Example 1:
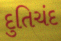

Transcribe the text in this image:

દુતિચંદ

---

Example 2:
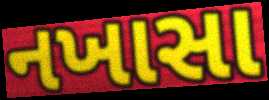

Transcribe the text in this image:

નખાસા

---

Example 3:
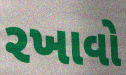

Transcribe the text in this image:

રખાવો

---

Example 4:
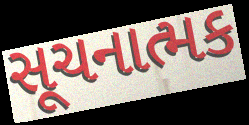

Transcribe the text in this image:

સૂચનાત્મક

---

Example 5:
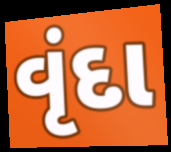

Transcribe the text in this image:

વૃંદા